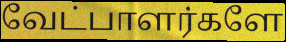
வேட்பாளர்களே